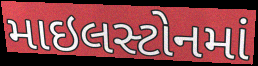
માઇલસ્ટોનમાં